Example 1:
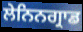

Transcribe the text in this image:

ਲੇਨਿਨਗ੍ਰਾਡ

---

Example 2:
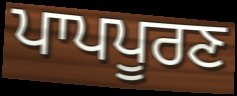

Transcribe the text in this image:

ਪਾਪਪੂਰਣ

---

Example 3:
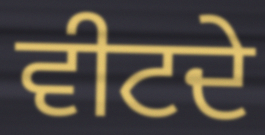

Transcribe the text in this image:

ਵੀਟਦੇ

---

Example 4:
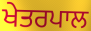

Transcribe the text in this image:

ਖੇਤਰਪਾਲ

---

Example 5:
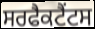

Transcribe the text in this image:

ਸਰਫੈਕਟੈਂਟਸ